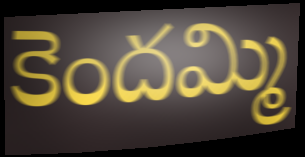
కెందమ్మి